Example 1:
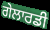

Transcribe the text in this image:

ਗੇਲਾਰਡੀ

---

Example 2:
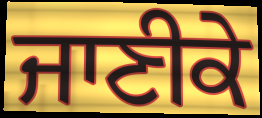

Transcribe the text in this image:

ਜਾਣੀਕੇ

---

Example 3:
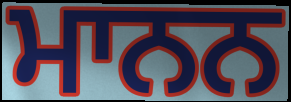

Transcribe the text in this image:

ਮਾਨਨ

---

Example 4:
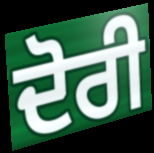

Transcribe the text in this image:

ਦੋਰੀ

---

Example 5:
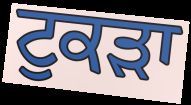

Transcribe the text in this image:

ਟੁਕਡ਼ਾ